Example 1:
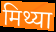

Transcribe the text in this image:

मिथ्या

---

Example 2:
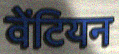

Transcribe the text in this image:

वेंटियन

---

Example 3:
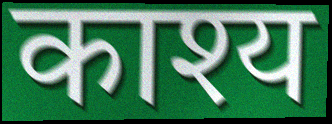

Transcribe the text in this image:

काश्य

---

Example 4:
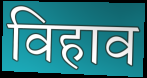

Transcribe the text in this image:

विहाव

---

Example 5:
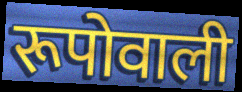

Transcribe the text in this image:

रूपोवाली